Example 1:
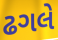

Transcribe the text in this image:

ઢગલે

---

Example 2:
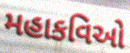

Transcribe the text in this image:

મહાકવિઓ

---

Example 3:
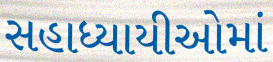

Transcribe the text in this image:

સહાધ્યાયીઓમાં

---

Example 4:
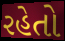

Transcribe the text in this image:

રહેતો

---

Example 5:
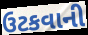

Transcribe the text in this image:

ઉટકવાની